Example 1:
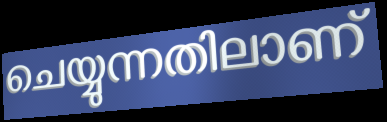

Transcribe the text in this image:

ചെയ്യുന്നതിലാണ്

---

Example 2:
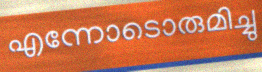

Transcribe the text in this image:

എന്നോടൊരുമിച്ചു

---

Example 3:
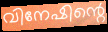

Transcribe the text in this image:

വിനേഷിന്റെ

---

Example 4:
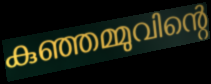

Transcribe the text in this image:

കുഞ്ഞമ്മുവിന്റെ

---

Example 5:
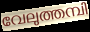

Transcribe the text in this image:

വേലുത്തമ്പി